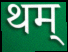
थम्